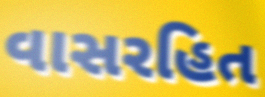
વાસરહિત